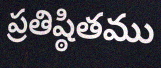
ప్రతిష్ఠితము